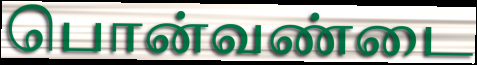
பொன்வண்டை